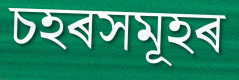
চহৰসমূহৰ